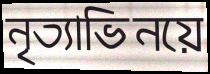
নৃত্যাভিনয়ে